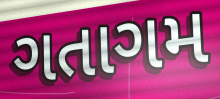
ગતાગમ